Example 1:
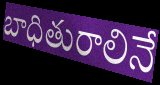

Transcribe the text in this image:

బాధితురాలినే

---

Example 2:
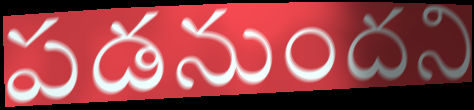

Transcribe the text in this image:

పడనుందని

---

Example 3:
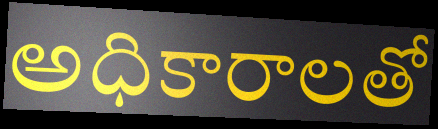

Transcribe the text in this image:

అధికారాలతో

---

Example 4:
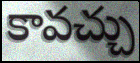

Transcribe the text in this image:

కావచ్చు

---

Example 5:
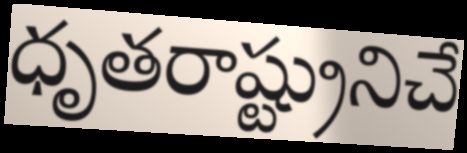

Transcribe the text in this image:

ధృతరాష్ట్రునిచే